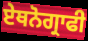
ਏਥਨੋਗ੍ਰਾਫੀ